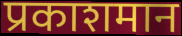
प्रकाशमान